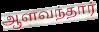
ஆளவந்தார்